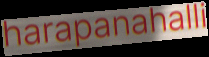
harapanahalli